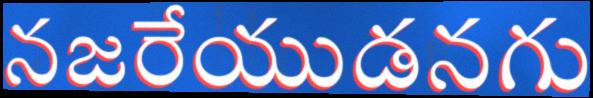
నజరేయుడనగు